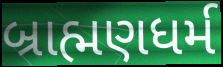
બ્રાહ્મણધર્મ